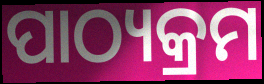
ପାଠ୍ୟକ୍ରମ